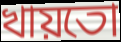
খায়তো